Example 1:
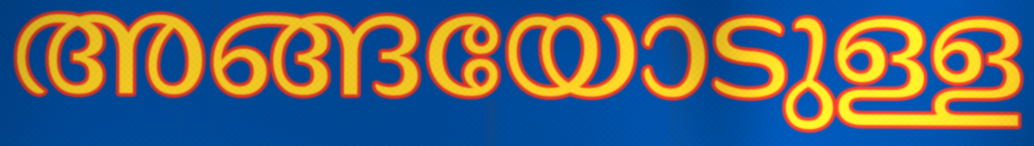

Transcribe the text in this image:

അങ്ങയോടുള്ള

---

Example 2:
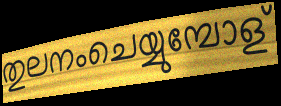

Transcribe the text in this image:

തുലനംചെയ്യുമ്പോള്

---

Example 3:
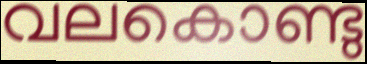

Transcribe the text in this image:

വലകൊണ്ടു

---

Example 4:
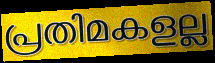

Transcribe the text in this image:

പ്രതിമകളല്ല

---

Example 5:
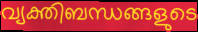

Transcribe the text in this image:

വ്യക്തിബന്ധങ്ങളുടെ